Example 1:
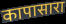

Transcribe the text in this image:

कापासारा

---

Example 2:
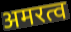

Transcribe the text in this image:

अमरत्व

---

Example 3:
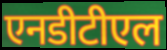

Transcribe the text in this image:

एनडीटीएल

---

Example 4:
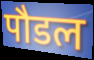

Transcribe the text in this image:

पौडल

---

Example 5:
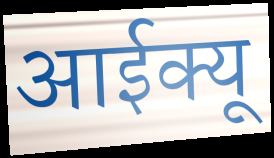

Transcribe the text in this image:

आईक्यू